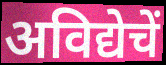
अविद्येचें